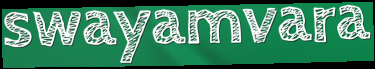
swayamvara